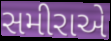
સમીરાએ